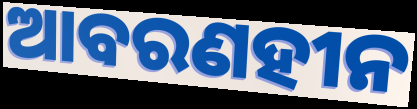
ଆବରଣହୀନ